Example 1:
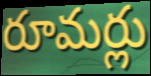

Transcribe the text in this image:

రూమర్లు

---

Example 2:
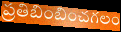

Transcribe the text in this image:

ప్రతిబింబించగలం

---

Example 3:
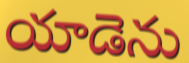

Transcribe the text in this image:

యాడెను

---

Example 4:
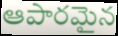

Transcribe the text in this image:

ఆపారమైన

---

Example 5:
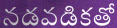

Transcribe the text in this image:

నడవడికతో